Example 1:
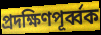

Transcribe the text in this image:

প্রদক্ষিণপূর্ব্বক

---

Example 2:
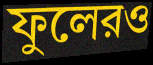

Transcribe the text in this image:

ফুলেরও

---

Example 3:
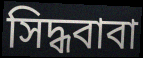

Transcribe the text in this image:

সিদ্ধবাবা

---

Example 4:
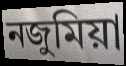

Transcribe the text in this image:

নজুমিয়া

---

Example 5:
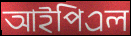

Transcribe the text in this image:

আইপিএল